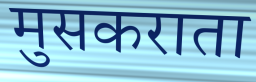
मुसकराता